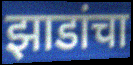
झाडांचा